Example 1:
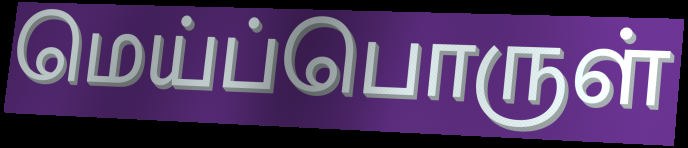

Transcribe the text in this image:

மெய்ப்பொருள்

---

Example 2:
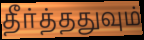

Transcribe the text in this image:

தீர்த்ததுவும்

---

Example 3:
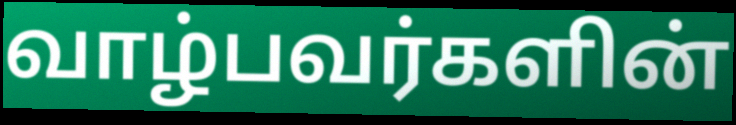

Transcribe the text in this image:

வாழ்பவர்களின்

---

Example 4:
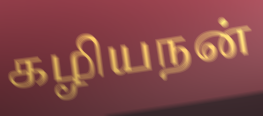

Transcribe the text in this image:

கழியநன்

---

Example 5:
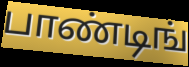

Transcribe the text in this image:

பாண்டிங்